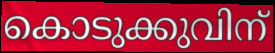
കൊടുക്കുവിന്